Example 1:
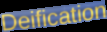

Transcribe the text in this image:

Deification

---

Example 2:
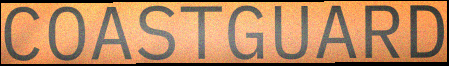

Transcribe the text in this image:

COASTGUARD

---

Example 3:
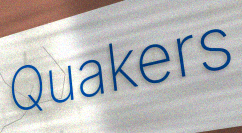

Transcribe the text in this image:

Quakers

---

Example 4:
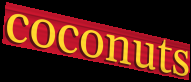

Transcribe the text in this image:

coconuts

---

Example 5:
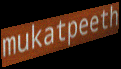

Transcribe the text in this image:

mukatpeeth